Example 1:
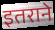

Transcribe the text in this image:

इतराने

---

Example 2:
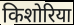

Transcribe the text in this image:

किशोरिया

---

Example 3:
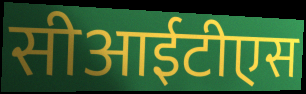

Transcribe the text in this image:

सीआईटीएस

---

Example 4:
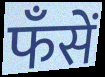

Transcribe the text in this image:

फँसें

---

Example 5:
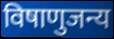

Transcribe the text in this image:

विषाणुजन्य